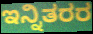
ಇನ್ನಿತರರ